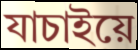
যাচাইয়ে